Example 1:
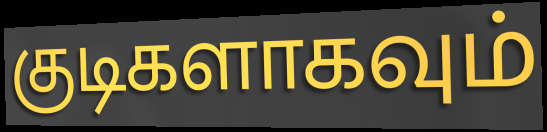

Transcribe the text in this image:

குடிகளாகவும்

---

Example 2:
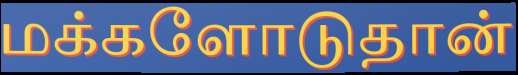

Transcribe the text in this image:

மக்களோடுதான்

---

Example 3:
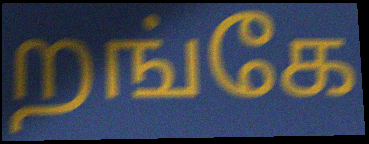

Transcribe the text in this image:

றங்கே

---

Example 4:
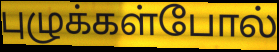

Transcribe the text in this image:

புழுக்கள்போல்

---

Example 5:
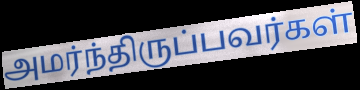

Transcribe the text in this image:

அமர்ந்திருப்பவர்கள்